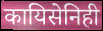
कायिसेनिही